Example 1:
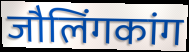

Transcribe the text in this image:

जौलिंगकांग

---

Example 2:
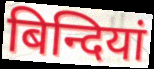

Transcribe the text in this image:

बिन्दियां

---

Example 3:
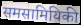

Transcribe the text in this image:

समसामियिकी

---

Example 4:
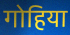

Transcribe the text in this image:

गोहिया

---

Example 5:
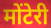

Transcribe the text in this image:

मोंटेरी